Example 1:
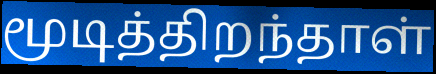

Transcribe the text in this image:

மூடித்திறந்தாள்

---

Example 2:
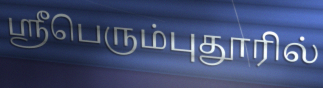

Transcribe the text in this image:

ஸ்ரீபெரும்புதூரில்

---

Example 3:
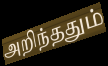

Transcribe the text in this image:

அறிந்ததும்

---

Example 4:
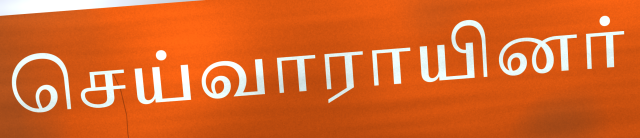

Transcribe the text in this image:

செய்வாராயினர்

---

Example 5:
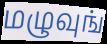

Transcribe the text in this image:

மழுவுங்